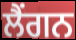
ਲੈਂਗਨ